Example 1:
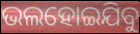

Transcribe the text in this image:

ଭଲହୋଇଯିବୁ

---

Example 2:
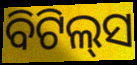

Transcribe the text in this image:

ବିଟିଲ୍‌ସ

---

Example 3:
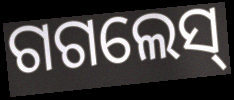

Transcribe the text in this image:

ଗଗଲେସ୍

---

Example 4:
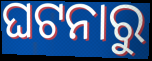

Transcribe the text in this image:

ଘଟନାରୁ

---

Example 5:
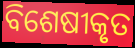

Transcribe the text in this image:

ବିଶେଷୀକୃତ